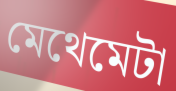
মেথেমেটা